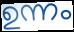
ഉന്നം